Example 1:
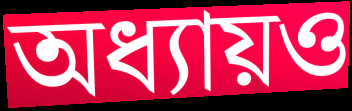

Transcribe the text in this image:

অধ্যায়ও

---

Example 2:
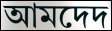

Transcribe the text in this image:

আমদেদ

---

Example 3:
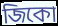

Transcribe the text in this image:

জিকো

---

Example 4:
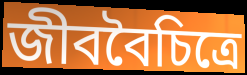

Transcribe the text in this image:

জীববৈচিত্রে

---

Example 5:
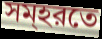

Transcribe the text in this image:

সম্হরতে